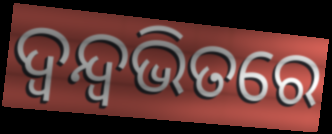
ଦ୍ୱନ୍ଦ୍ୱଭିତରେ